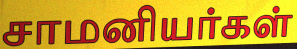
சாமனியர்கள்